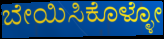
ಬೇಯಿಸಿಕೊಳ್ಳೋ